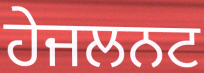
ਹੇਜਲਨਟ